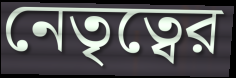
নেতৃত্বের